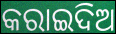
କରାଇଦିଅ